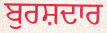
ਬੁਰਸ਼ਦਾਰ